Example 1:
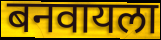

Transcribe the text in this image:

बनवायला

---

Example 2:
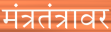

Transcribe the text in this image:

मंत्रतंत्रावर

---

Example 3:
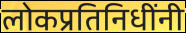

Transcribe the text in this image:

लोकप्रतिनिधींनी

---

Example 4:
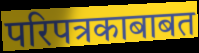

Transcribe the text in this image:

परिपत्रकाबाबत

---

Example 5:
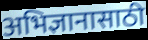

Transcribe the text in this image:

अभिज्ञानासाठी